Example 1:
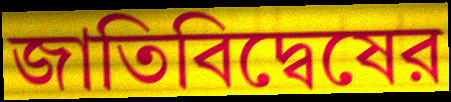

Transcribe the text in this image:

জাতিবিদ্বেষের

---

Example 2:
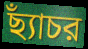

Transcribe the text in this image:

ছ্যাঁচর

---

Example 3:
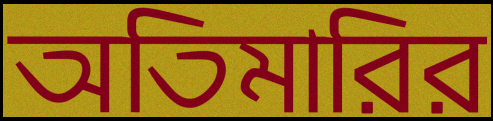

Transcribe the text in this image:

অতিমারির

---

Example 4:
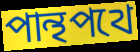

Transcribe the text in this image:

পান্থপথে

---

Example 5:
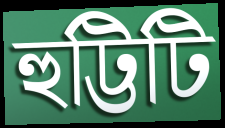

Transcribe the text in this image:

হুট্টিটি